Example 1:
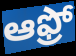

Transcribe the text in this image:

ఆఫ్రో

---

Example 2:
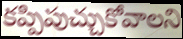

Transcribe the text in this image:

కప్పిపుచ్చుకోవాలని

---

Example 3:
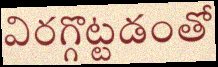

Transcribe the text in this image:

విరగ్గొట్టడంతో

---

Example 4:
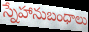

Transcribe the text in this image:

స్నేహానుబంధాలు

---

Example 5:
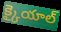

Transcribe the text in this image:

క్కైయాల్